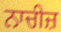
ਨਾਚੀਜ਼